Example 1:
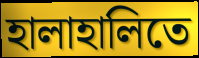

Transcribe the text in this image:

হালাহালিতে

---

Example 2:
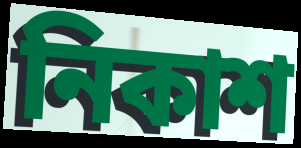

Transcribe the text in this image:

নিকাশ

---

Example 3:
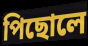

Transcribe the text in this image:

পিছোলে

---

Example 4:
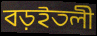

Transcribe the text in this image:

বড়ইতলী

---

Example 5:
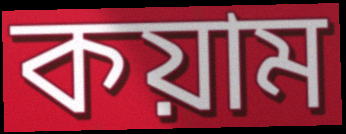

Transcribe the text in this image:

কয়াম